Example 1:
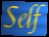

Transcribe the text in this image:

Self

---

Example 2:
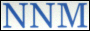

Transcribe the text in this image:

NNM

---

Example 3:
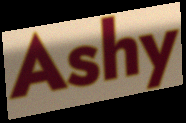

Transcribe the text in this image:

Ashy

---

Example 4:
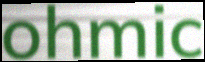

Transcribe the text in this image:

ohmic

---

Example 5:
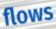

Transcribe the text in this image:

flows